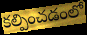
కల్పించడంలో